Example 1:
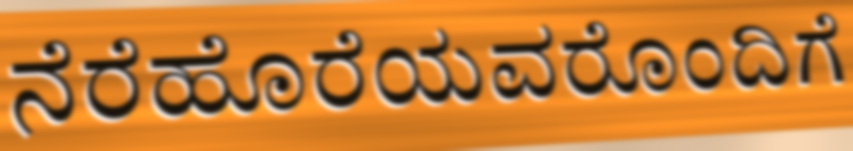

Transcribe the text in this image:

ನೆರೆಹೊರೆಯವರೊಂದಿಗೆ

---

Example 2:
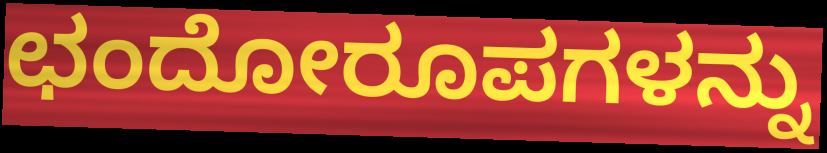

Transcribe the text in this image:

ಛಂದೋರೂಪಗಳನ್ನು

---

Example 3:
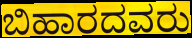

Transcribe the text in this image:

ಬಿಹಾರದವರು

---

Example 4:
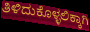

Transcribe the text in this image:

ತಿಳಿದುಕೊಳ್ಳಲಿಕ್ಕಾಗಿ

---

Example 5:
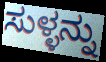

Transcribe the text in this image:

ಸುಳ್ಳನ್ನು